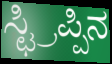
ಸ್ಟ್ರಿಪ್ಪಿನ